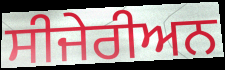
ਸੀਜੇਰੀਅਨ